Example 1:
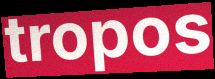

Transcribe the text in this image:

tropos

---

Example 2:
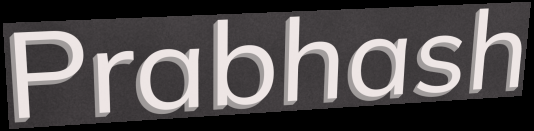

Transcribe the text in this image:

Prabhash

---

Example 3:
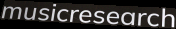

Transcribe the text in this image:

musicresearch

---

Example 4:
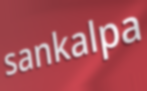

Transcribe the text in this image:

sankalpa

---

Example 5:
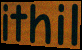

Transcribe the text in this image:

ithil